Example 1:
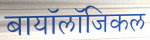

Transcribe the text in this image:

बायॉलॉजिकल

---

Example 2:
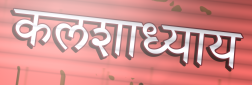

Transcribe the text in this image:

कलशाध्याय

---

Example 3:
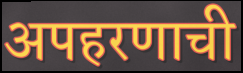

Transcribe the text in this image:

अपहरणाची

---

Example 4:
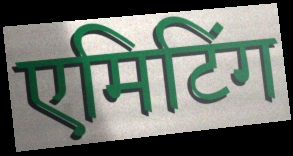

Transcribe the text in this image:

एमिटिंग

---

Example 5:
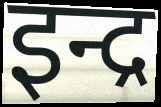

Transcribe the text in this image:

इन्द्र